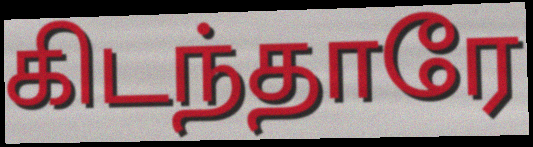
கிடந்தாரே